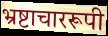
भ्रष्टाचाररूपी